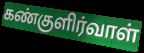
கண்குளிர்வாள்